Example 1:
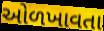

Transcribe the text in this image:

ઓળખાવતા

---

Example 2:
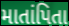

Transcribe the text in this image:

માતાંપિતા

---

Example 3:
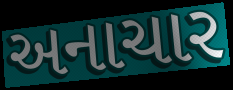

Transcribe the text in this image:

અનાચાર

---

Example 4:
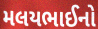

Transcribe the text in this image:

મલયભાઈનો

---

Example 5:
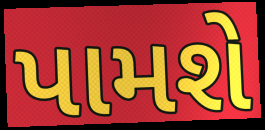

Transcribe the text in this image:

પામશે